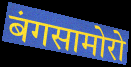
बंगसामोरो